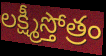
లక్ష్మీస్తోత్రం